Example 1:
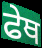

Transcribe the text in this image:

ਫੇਥ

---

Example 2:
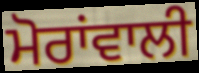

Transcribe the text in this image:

ਮੋਰਾਂਵਾਲੀ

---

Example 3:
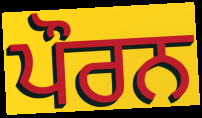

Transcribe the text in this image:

ਪੌਰਨ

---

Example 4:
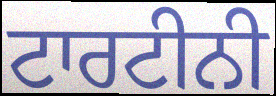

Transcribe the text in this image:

ਟਾਰਟੀਨੀ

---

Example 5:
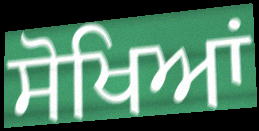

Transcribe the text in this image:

ਸੋਖਿਆਂ